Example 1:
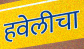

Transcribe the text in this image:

हवेलीचा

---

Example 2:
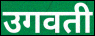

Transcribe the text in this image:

उगवती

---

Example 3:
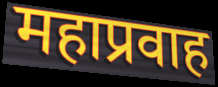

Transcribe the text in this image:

महाप्रवाह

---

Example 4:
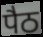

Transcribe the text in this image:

पैठ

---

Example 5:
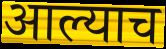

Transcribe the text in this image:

आल्याच